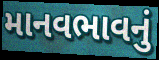
માનવભાવનું